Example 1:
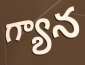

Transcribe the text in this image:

గ్యాన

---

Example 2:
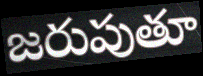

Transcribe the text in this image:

జరుపుతూ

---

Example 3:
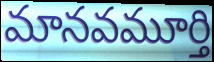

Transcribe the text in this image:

మానవమూర్తి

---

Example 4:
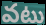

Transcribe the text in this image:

వటు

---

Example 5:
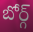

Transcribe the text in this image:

బోర్గ్